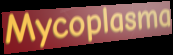
Mycoplasma